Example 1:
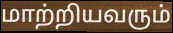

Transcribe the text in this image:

மாற்றியவரும்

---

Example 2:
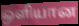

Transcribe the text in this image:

ஒளியான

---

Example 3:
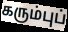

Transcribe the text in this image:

கரும்புப்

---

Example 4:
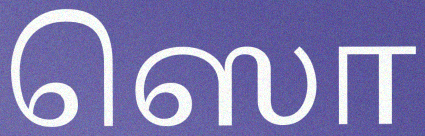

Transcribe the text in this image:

ஸொ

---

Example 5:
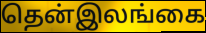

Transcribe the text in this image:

தென்இலங்கை